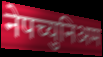
नेपच्युनिअम